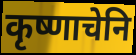
कृष्णाचेनि